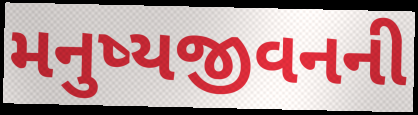
મનુષ્યજીવનની